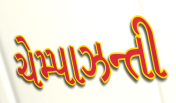
ચેમ્પાઝન્તી